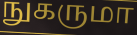
நுகருமா